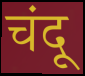
चंदू